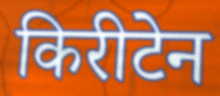
किरीटेन